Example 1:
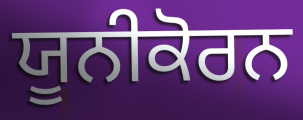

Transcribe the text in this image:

ਯੂਨੀਕੋਰਨ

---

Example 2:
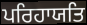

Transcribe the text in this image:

ਪਰਿਹਾਯਤਿ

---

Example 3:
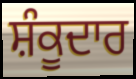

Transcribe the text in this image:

ਸ਼ੰਕੂਦਾਰ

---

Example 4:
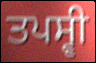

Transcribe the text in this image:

ਤਪਸ੍ਵੀ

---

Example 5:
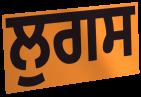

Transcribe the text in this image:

ਲੁਗਸ